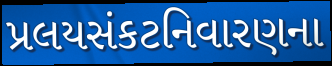
પ્રલયસંકટનિવારણના